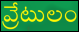
వ్రేటులం